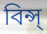
বিন্স্